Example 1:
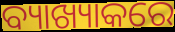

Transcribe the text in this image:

ବ୍ୟାଖ୍ୟାକରେ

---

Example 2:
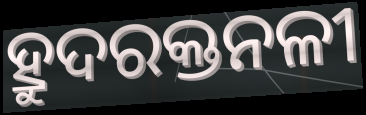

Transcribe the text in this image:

ହ୍ରୁଦରକ୍ତନଳୀ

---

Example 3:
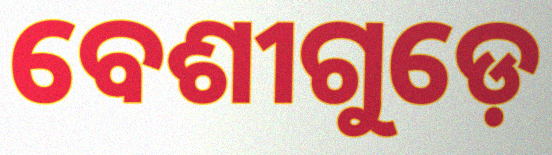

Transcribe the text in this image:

ବେଶୀଗୁଡ଼େ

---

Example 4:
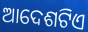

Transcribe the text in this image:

ଆଦେଶଟିଏ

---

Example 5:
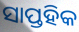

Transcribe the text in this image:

ସାପ୍ତହିକ